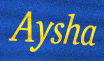
Aysha